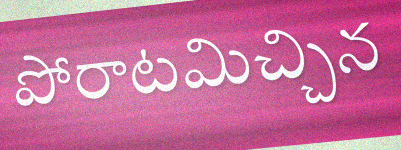
పోరాటమిచ్చిన